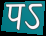
पऽ